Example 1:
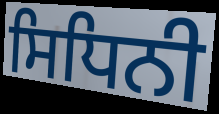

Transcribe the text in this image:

ਸਿਧਿਨੀ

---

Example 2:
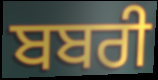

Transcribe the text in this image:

ਬਬਰੀ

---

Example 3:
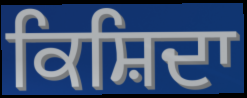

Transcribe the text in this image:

ਕਿਸ਼ਿਦਾ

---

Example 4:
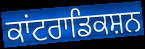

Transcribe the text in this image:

ਕਾਂਟਰਾਡਿਕਸ਼ਨ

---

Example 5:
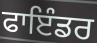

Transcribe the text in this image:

ਫਾਇੰਡਰ